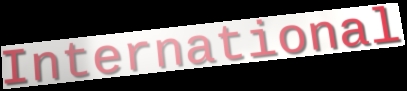
International